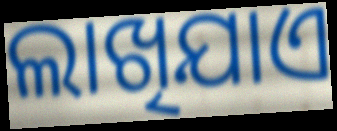
ଲାଖିଯାଏ